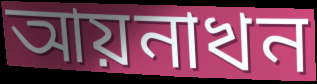
আয়নাখন